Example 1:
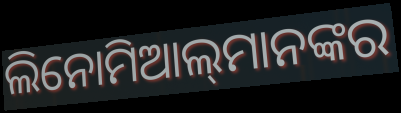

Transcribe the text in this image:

ଲିନୋମିଆଲ୍‌ମାନଙ୍କର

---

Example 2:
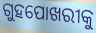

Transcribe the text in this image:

ଗୁହପୋଖରୀକୁ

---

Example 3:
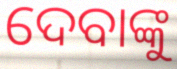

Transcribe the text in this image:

ଦେବାଙ୍କୁ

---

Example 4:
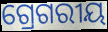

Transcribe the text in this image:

ଗ୍ରେଗରୀୟ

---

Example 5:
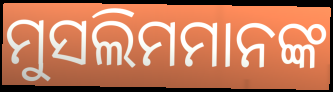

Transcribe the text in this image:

ମୁସଲିମମାନଙ୍କ